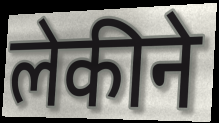
लेकीने